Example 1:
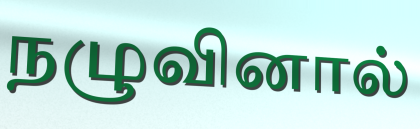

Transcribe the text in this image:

நழுவினால்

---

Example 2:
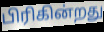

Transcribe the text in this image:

பிரிகின்றது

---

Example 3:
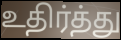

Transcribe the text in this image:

உதிர்த்து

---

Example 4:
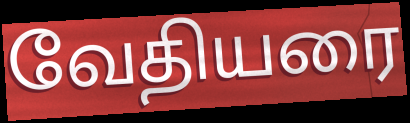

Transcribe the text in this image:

வேதியரை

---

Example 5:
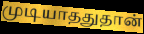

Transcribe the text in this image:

முடியாததுதான்